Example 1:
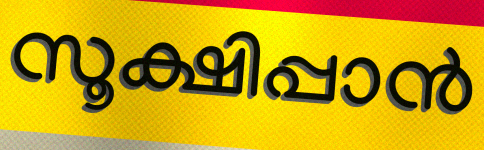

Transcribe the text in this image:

സൂക്ഷിപ്പാൻ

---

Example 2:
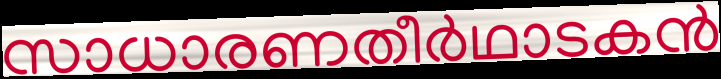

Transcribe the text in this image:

സാധാരണതീർഥാടകൻ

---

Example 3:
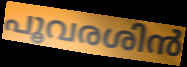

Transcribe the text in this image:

പൂവരശിൻ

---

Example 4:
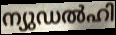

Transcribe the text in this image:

ന്യുഡൽഹി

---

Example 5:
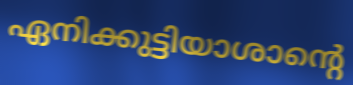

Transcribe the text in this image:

ഏനിക്കുട്ടിയാശാന്റെ